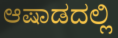
ಆಷಾಡದಲ್ಲಿ